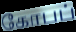
கோபப்